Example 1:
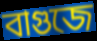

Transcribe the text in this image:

বাগুজে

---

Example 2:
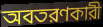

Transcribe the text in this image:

অবতরণকারী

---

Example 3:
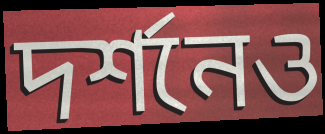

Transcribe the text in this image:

দর্শনেও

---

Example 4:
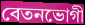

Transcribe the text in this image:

বেতনভোগী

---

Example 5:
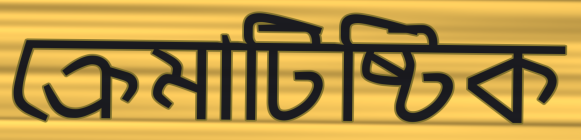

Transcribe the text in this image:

ক্রেমাটিষ্টিক